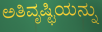
ಅತಿವೃಷ್ಟಿಯನ್ನು